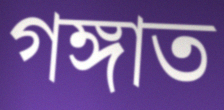
গঙ্গাত